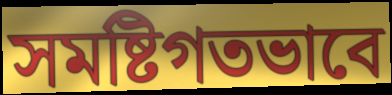
সমষ্টিগতভাবে